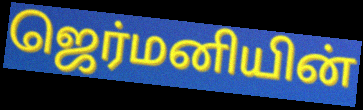
ஜெர்மனியின்